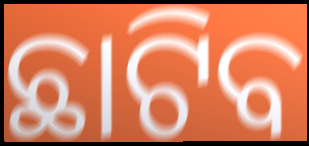
ଛାଟିବ